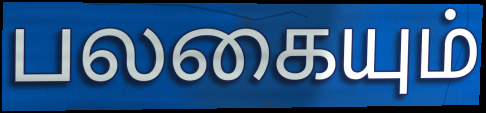
பலகையும்